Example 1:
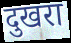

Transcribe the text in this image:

दुखरा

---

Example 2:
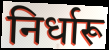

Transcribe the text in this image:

निर्धारू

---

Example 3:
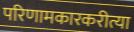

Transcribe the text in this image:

परिणामकारकरीत्या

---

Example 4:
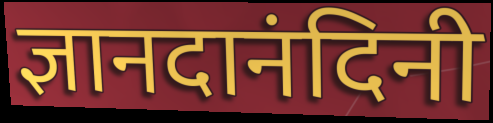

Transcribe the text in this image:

ज्ञानदानंदिनी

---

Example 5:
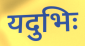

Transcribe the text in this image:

यदुभिः